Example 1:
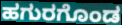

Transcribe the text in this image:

ಹಗುರಗೊಂಡ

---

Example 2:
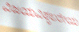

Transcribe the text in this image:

ವಿಜಯವಿಠ್ಠಲರೇಯ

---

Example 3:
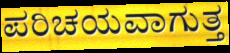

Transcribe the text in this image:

ಪರಿಚಯವಾಗುತ್ತ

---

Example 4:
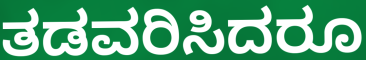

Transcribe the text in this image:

ತಡವರಿಸಿದರೂ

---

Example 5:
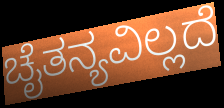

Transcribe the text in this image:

ಚೈತನ್ಯವಿಲ್ಲದೆ